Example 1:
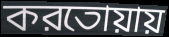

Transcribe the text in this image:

করতোয়ায়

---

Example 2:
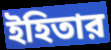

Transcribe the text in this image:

ইহিতার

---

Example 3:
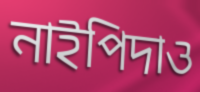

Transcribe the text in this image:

নাইপিদাও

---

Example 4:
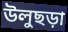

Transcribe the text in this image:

উলুছড়া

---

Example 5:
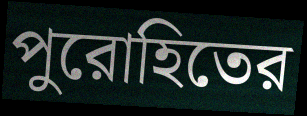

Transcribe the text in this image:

পুরোহিতের